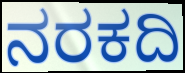
ನರಕದಿ